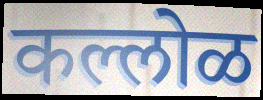
कल्लोळ